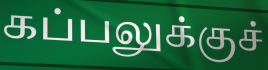
கப்பலுக்குச்